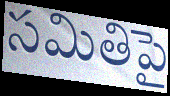
సమితిపై